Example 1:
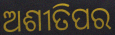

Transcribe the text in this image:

ଅଶୀତିପର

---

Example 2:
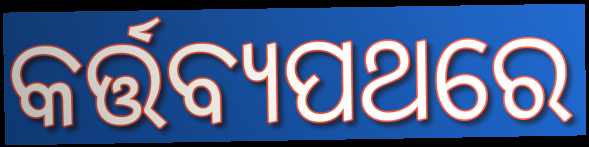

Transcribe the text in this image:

କର୍ତ୍ତବ୍ୟପଥରେ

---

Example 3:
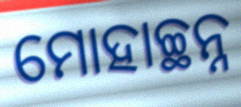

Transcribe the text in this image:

ମୋହାଚ୍ଛନ୍ନ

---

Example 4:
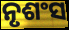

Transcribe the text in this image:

ନୃଶଂସ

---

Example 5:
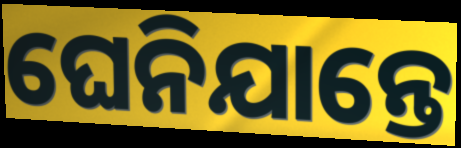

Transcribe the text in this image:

ଘେନିଯାନ୍ତେ